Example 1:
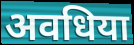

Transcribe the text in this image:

अवधिया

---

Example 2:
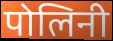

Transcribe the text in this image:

पोलिनी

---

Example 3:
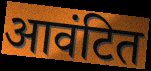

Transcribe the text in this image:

आवंटित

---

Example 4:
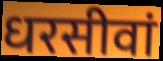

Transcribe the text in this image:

धरसीवां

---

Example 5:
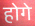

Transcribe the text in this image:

होगे